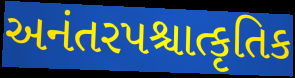
અનંતરપશ્ચાત્કૃતિક